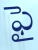
ఫై